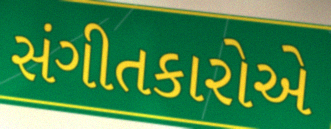
સંગીતકારોએ